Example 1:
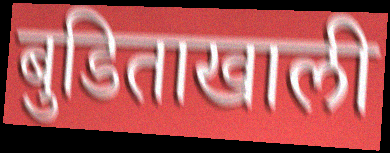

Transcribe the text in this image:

बुडिताखाली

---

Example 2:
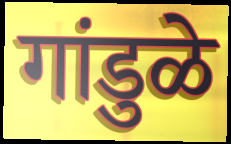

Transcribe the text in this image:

गांडुळे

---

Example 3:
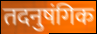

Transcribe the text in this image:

तदनुषंगिक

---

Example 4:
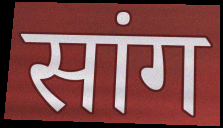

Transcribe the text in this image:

सांग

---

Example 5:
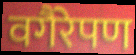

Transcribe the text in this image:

वगैरेपण